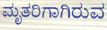
ಮೃತರಿಗಾಗಿರುವ